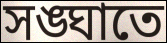
সঙ্ঘাতে